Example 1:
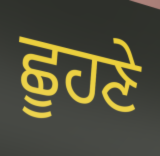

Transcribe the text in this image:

ਛੂਹਣੇ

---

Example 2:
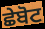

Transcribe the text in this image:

ਛੇਬੋਟ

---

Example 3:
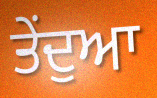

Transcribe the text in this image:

ਤੇਂਦੁਆ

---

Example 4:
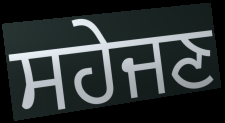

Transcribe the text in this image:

ਸਹੇਜਣ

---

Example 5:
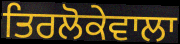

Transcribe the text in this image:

ਤਿਰਲੋਕੇਵਾਲਾ